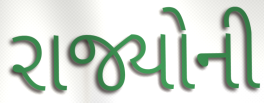
રાજ્યોની